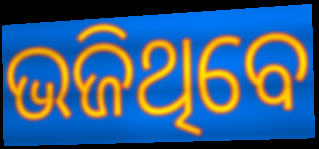
ଭଜିଥିବେ